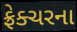
ફ્રેક્ચરના